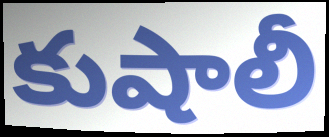
కుషాలీ